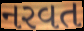
નરવત